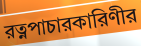
রত্নপাচারকারিণীর